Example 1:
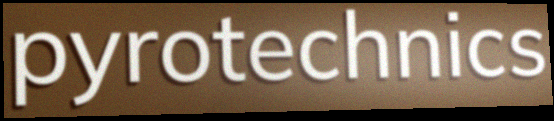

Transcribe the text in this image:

pyrotechnics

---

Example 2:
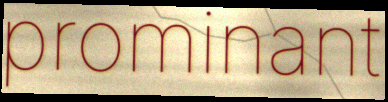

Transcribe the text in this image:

prominant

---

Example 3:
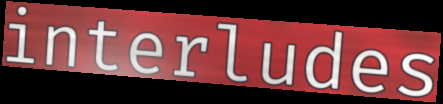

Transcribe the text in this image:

interludes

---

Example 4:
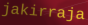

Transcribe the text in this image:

jakirraja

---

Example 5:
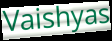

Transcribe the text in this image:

Vaishyas